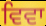
ਵਿਵਾ